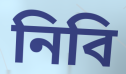
নিবি